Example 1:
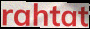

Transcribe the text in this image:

rahtat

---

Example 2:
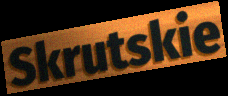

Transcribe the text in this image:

Skrutskie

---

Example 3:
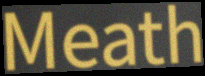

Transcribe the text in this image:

Meath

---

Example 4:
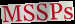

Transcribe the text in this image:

MSSPs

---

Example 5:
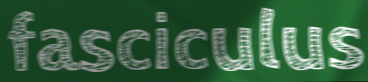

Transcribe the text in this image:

fasciculus